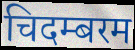
चिदम्बरम